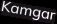
Kamgar